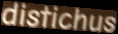
distichus